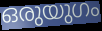
ഒരുയുഗം